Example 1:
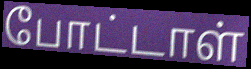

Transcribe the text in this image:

போட்டாள்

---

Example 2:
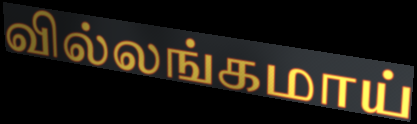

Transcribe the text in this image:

வில்லங்கமாய்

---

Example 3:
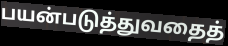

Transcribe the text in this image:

பயன்படுத்துவதைத்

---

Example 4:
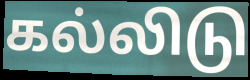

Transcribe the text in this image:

கல்லிடு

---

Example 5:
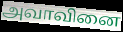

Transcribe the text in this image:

அவாவினை